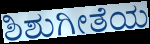
ಶಿಶುಗೀತೆಯ